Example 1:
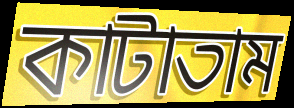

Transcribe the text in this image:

কাটাতাম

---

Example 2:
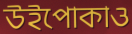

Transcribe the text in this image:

উইপোকাও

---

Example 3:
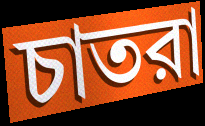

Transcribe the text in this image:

চাতরা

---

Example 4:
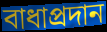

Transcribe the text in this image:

বাধাপ্রদান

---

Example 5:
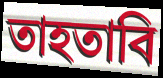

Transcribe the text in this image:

তাহতাবি